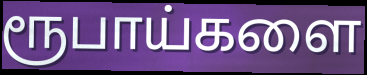
ரூபாய்களை